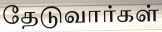
தேடுவார்கள்